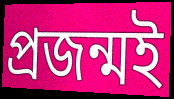
প্ৰজন্মই